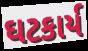
ઘટકાર્ય